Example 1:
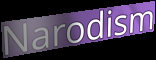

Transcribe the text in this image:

Narodism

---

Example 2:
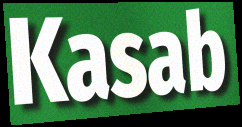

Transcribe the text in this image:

Kasab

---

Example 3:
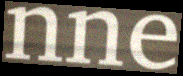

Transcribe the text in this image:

nne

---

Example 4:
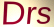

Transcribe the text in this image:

Drs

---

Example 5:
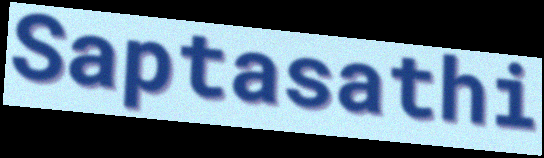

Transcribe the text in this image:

Saptasathi